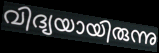
വിദ്യയായിരുന്നു